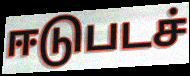
ஈடுபடச்